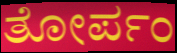
ತೋರ್ಪಂ